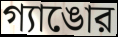
গ্যাঙোর